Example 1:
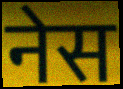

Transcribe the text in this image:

नेस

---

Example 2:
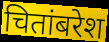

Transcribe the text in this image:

चितांबरेश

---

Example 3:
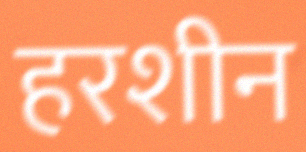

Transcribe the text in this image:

हरशीन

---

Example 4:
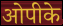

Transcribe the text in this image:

ओपीके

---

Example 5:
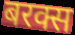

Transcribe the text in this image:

बरक्स